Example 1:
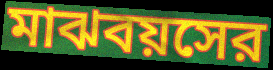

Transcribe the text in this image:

মাঝবয়সের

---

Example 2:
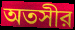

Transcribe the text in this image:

অতসীর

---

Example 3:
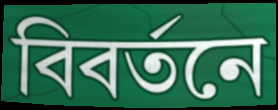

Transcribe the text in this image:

বিবর্তনে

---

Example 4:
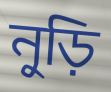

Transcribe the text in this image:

নুড়ি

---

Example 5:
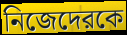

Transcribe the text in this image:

নিজেদেরকে